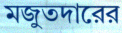
মজুতদারের